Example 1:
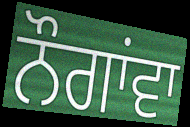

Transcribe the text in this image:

ਨੌਗਾਂਵਾ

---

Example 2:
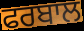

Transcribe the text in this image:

ਫਰਬਾਲ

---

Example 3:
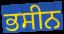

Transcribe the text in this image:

ਭਸੀਨ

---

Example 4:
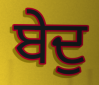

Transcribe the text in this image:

ਬੇਦੁ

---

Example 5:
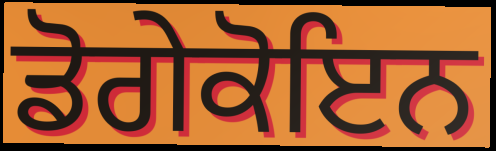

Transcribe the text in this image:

ਡੋਗੇਕੋਇਨ